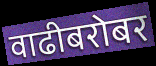
वाढीबरोबर